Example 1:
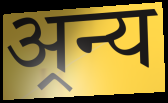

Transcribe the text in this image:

अ्रन्य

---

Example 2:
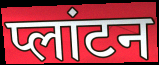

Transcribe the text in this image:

प्लांटन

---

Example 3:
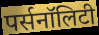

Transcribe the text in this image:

पर्सनॉलिटी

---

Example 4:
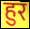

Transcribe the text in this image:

हुर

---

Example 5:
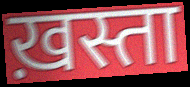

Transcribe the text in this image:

ख़स्ता